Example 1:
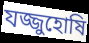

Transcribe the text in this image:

যজ্জুহোষি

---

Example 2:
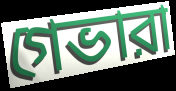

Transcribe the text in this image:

গেভারা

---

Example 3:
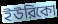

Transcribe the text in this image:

ইউরিকো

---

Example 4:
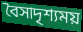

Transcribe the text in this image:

বৈসাদৃশ্যময়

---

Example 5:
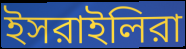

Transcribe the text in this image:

ইসরাইলিরা